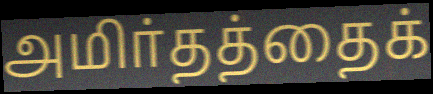
அமிர்தத்தைக்